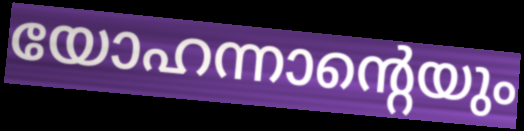
യോഹന്നാന്റെയും